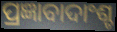
ପ୍ରଜ୍ଞାବାଦାଂଶ୍ଚ